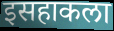
इसहाकला